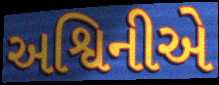
અશ્વિનીએ